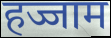
हज्जाम